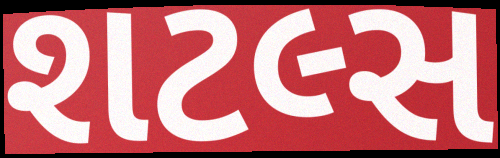
શટલ્સ